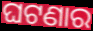
ଘଟଣାର